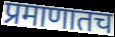
प्रमाणातच